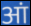
आं